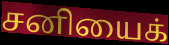
சனியைக்